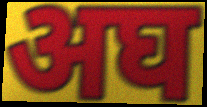
अघ